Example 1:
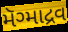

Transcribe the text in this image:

મૅગ્માદ્રવ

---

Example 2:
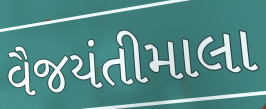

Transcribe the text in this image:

વૈજયંતીમાલા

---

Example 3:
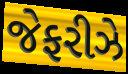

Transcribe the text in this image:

જેફરીઝે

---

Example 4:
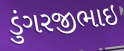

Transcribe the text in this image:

ડુંગરજીભાઇ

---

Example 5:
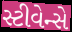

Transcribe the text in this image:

સ્ટીવેન્સે